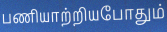
பணியாற்றியபோதும்